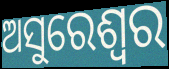
ଅସୁରେଶ୍ଵର